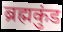
ब्रह्मकुंड